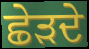
ਛੇੜਦੇ